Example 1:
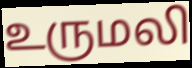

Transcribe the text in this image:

உருமலி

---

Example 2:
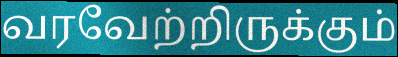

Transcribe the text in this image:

வரவேற்றிருக்கும்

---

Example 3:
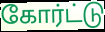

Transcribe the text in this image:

கோர்ட்டு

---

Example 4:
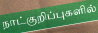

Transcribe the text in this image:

நாட்குறிப்புகளில்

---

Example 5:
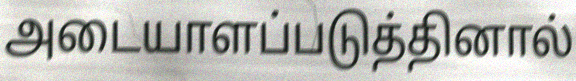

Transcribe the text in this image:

அடையாளப்படுத்தினால்